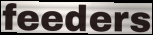
feeders